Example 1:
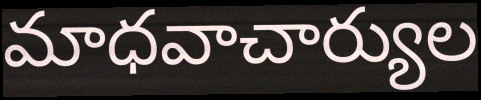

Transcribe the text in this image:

మాధవాచార్యుల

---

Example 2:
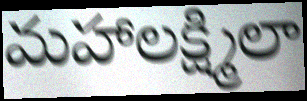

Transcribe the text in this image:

మహాలక్ష్మిలా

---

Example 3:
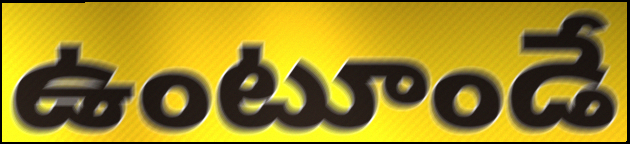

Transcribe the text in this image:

ఉంటూండే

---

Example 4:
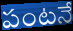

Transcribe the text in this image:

పంటనే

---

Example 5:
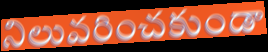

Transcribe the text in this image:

నిలువరించకుండా